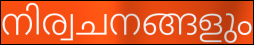
നിര്വചനങ്ങളും